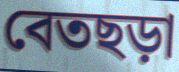
বেতছড়া